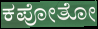
ಕಪೋತೋ